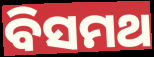
ବିସମଥ